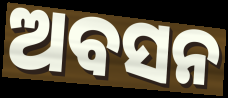
ଅବସନ